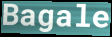
Bagale